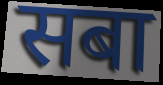
सबा